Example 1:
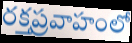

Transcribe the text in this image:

రక్తప్రవాహంలో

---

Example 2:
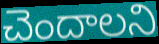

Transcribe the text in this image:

చెందాలని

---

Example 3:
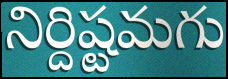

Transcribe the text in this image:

నిర్దిష్టమగు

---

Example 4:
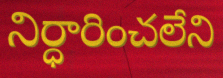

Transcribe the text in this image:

నిర్ధారించలేని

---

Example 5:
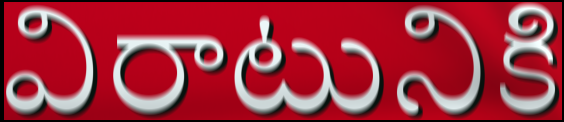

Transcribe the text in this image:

విరాటునికి